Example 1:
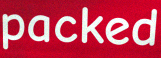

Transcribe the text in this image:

packed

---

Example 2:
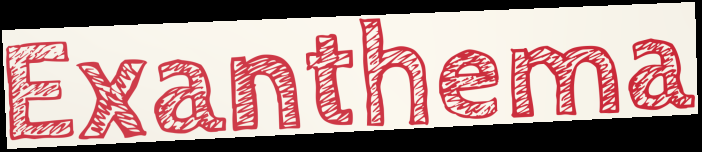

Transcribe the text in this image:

Exanthema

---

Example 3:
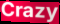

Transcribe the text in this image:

Crazy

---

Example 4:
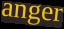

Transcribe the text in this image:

anger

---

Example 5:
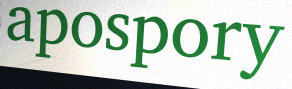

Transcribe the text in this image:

apospory